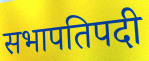
सभापतिपदी